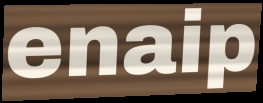
enaip